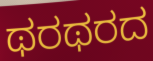
ಥರಥರದ